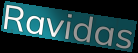
Ravidas